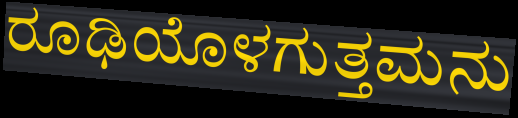
ರೂಢಿಯೊಳಗುತ್ತಮನು